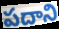
పదాని